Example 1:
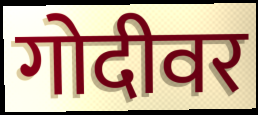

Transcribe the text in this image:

गोदीवर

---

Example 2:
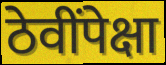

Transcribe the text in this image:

ठेवींपेक्षा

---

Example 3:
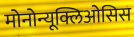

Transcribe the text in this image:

मोनोन्यूक्लिओसिस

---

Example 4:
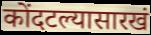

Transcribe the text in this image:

कोंदटल्यासारखं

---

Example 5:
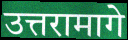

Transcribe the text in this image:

उत्तरामागे